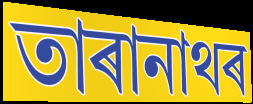
তাৰানাথৰ